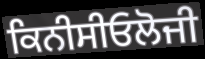
ਕਿਨੀਸੀਓਲੋਜੀ